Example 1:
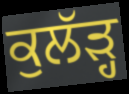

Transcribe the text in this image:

ਕੁਲੱੜ੍ਹ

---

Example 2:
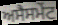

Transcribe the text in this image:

ਅਸੈਸਮੇਂਟ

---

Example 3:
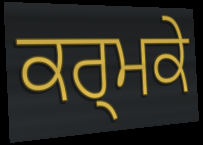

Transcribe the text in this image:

ਕਰ੍ਮਕੇ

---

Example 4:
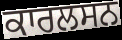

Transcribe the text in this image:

ਕਾਰਲਸਨ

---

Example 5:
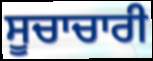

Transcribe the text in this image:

ਸੂਚਾਚਾਰੀ